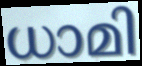
ധാമി